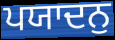
ਪਯਾਦਨੁ